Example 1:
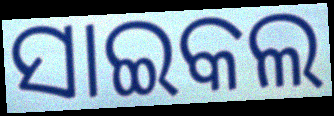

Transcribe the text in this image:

ସାଇକଲ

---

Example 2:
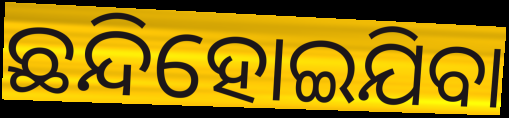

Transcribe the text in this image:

ଛନ୍ଦିହୋଇଯିବା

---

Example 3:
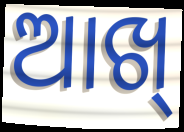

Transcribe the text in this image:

ଆଖ୍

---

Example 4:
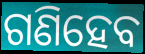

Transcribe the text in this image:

ଗଣିହେବ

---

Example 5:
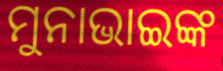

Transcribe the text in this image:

ମୁନାଭାଇଙ୍କ